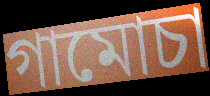
গামোচা